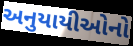
અનુયાયીઓનો